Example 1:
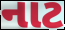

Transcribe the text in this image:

નાટ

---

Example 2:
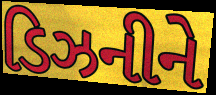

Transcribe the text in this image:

ડિઝનીને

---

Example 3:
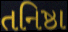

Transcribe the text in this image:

તનિષ્ઠા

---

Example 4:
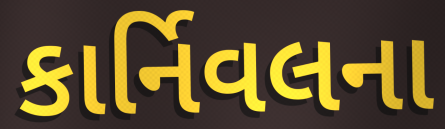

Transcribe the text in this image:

કાર્નિવલના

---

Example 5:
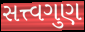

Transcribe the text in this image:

સત્ત્વગુણ